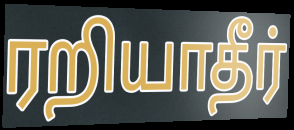
ரறியாதீர்